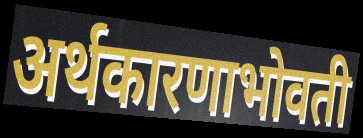
अर्थकारणाभोवती